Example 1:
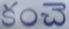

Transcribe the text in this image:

కంచె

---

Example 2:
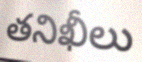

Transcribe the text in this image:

తనిఖీలు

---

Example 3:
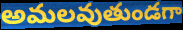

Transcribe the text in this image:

అమలవుతుండగా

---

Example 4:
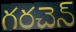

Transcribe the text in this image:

గరచెన్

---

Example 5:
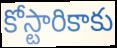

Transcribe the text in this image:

కోస్టారికాకు